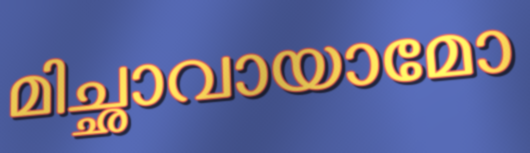
മിച്ഛാവായാമോ